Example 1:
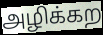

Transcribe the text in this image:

அழிக்கற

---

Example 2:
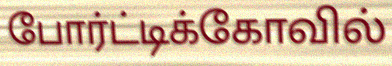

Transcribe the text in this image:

போர்ட்டிக்கோவில்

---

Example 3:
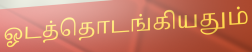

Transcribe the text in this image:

ஓடத்தொடங்கியதும்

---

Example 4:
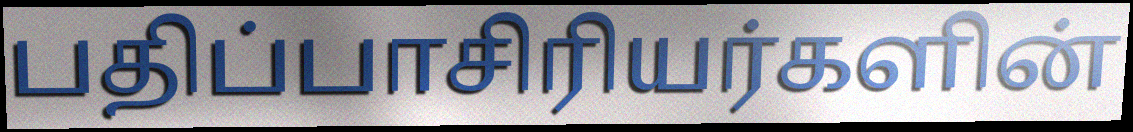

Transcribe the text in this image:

பதிப்பாசிரியர்களின்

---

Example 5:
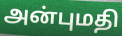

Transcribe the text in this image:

அன்புமதி